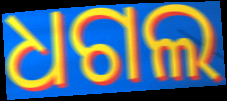
ଧଗଲ